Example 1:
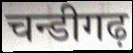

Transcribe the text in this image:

चन्डीगढ़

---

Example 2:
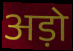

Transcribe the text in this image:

अड़ो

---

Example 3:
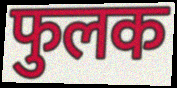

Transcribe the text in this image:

फुलक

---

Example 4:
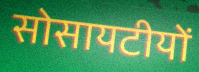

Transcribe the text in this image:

सोसायटीयों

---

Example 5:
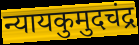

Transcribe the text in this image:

न्यायकुमुदचंद्र